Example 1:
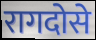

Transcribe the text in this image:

रागदोसे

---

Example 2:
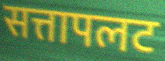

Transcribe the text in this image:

सत्तापलट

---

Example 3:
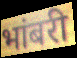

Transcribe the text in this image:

भांबरी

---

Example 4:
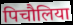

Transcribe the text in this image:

पिचौलिया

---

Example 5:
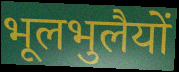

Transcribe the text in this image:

भूलभुलैयों